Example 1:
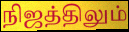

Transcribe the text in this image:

நிஜத்திலும்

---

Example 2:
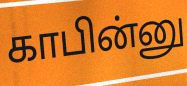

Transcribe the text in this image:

காபின்னு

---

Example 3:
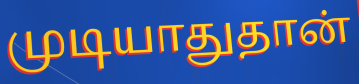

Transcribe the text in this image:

முடியாதுதான்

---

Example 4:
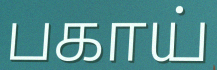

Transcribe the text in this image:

பகாய்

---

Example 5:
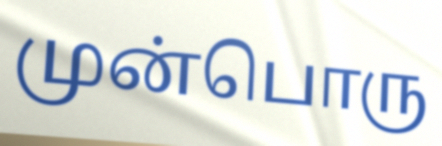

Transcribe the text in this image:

முன்பொரு